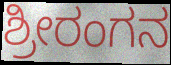
ಶ್ರೀರಂಗನ